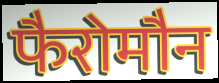
फैरोमौन